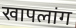
खापलांग